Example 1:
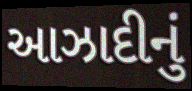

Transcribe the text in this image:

આઝાદીનું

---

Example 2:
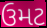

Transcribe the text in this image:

ઉમટ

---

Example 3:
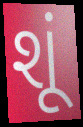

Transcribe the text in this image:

શૂં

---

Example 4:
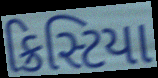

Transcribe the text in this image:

ક્રિસ્ટિયા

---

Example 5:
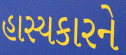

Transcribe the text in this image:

હાસ્યકારને